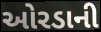
ઓરડાની